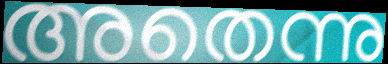
അതെന്നു